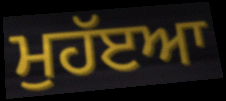
ਮੁਹੱੲਆ